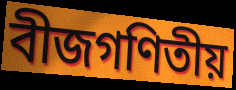
বীজগণিতীয়